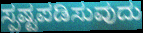
ಸ್ಪಷ್ಟಪಡಿಸುವುದು